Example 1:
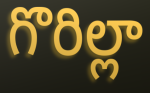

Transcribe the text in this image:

గొరిల్లా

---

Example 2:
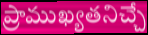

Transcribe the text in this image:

ప్రాముఖ్యతనిచ్చే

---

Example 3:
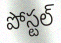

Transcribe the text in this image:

పోస్టల్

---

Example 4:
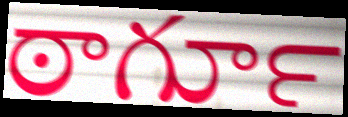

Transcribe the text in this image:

ఠాగూర్‍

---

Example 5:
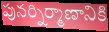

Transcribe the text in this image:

పునర్నిర్మాణానికి